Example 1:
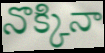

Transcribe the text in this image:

నొక్కినా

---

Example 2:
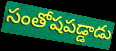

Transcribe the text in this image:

సంతోషపడ్డాడు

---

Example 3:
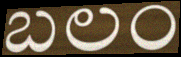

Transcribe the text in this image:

బలం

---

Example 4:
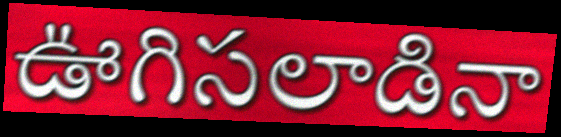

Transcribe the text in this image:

ఊగిసలాడినా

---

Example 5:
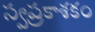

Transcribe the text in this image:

స్వప్రకాశకం